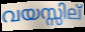
വയസ്സില്